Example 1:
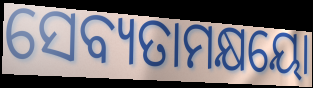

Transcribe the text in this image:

ସେବ୍ୟତାମକ୍ଷୟୋ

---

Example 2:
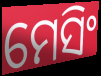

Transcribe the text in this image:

ମେସିଂ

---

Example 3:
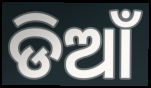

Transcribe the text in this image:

ଡିଆଁ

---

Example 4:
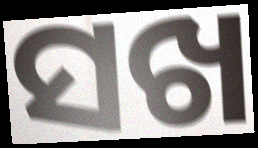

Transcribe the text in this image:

ସଖ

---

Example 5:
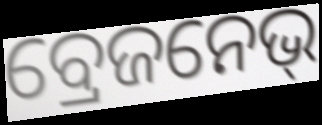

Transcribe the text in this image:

ବ୍ରେଜନେଭ୍